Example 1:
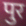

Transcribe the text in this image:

पुर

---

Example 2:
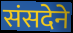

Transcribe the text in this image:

संसदेने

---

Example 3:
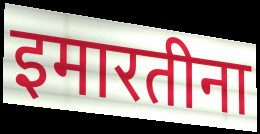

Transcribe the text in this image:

इमारतीना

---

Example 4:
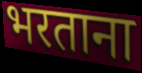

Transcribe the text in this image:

भरताना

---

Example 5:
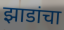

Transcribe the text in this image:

झाडांचा